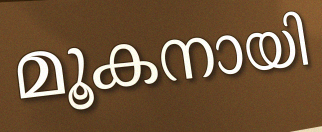
മൂകനായി